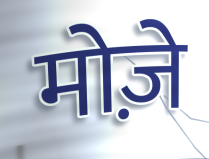
मोज़े